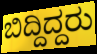
ಬಿದ್ದಿದ್ದರು